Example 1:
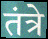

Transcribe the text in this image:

तंत्रे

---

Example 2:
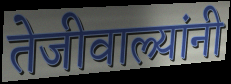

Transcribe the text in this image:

तेजीवाल्यांनी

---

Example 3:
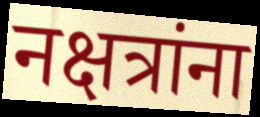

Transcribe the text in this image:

नक्षत्रांना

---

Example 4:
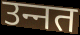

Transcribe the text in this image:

उन्‍नत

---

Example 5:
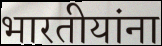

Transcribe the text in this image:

भारतीयांना